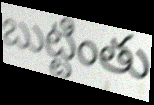
బుట్టింతు